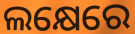
ଲକ୍ଷେରେ